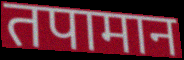
तपामान